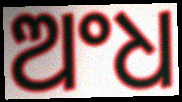
ଅଂଧ